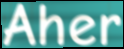
Aher